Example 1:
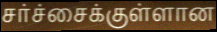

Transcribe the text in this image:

சர்ச்சைக்குள்ளான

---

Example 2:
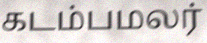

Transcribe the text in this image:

கடம்பமலர்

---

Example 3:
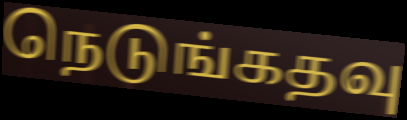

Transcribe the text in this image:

நெடுங்கதவு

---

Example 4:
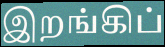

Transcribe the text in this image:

இறங்கிப்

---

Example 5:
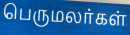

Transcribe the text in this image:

பெருமலர்கள்